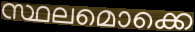
സ്ഥലമൊക്കെ